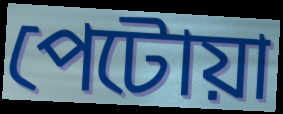
পেটোয়া